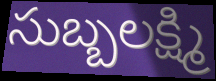
సుబ్బలక్ష్మి